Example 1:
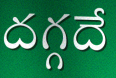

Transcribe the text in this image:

దగ్గదే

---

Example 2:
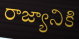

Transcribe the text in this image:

రాజ్యానికి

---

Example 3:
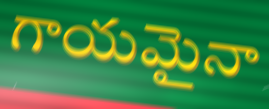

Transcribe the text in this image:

గాయమైనా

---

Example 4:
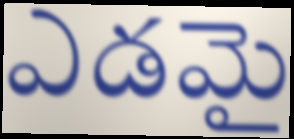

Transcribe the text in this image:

ఎడమై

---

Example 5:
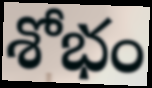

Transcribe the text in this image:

శోభం